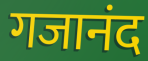
गजानंद